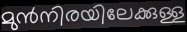
മുൻനിരയിലേക്കുള്ള